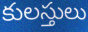
కులస్తులు